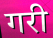
गरी